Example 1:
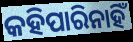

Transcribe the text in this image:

କହିପାରିନାହିଁ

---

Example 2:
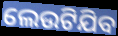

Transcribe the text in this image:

ଲେଉଟିଯିବ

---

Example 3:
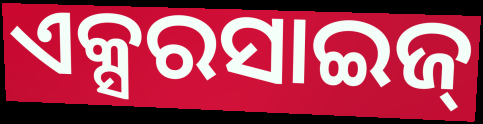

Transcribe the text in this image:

ଏକ୍ସରସାଇଜ୍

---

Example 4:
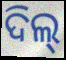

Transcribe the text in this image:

ଦିଲ୍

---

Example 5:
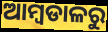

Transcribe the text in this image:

ଆମ୍ବଡାଳରୁ